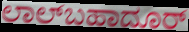
ಲಾಲ್‌ಬಹಾದೂರ್